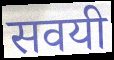
सवयी